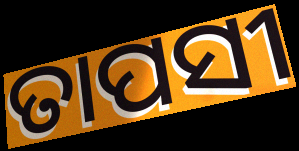
ତାପସୀ